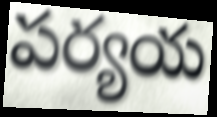
పర్యయ